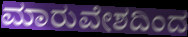
ಮಾರುವೇಶದಿಂದ